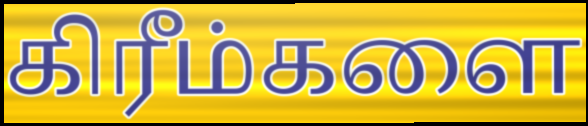
கிரீம்களை